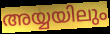
അയ്യയിലും